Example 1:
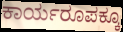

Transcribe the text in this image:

ಕಾರ್ಯರೂಪಕ್ಕೂ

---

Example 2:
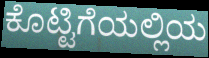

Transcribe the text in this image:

ಕೊಟ್ಟಿಗೆಯಲ್ಲಿಯ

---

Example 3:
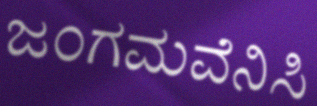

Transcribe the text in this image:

ಜಂಗಮವೆನಿಸಿ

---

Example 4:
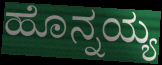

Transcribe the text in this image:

ಹೊನ್ನಯ್ಯ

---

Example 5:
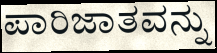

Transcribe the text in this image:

ಪಾರಿಜಾತವನ್ನು